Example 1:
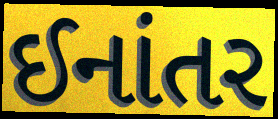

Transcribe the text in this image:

ઈનાંતર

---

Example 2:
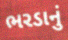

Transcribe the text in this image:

ભરડાનું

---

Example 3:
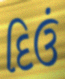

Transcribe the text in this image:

દિઉં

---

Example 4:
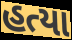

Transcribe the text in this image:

હત્યા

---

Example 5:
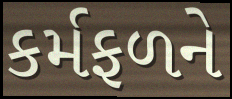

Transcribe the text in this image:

કર્મફળને